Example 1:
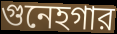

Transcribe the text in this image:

গুনেহগার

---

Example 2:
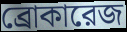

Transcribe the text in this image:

ব্রোকারেজ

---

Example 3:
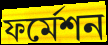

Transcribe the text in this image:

ফর্মেশন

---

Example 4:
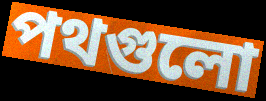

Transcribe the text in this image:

পথগুলো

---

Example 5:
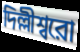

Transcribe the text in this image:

দিল্লীশ্বরো